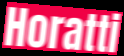
Horatti